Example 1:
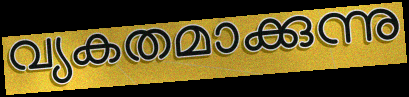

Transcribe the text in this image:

വ്യകതമാക്കുന്നു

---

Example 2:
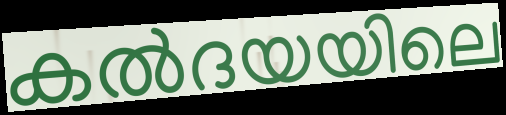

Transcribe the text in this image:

കൽദയയിലെ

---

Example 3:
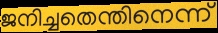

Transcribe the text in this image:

ജനിച്ചതെന്തിനെന്ന്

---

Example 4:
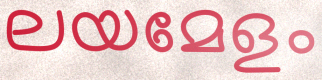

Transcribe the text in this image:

ലയമേളം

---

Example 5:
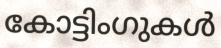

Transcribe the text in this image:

കോട്ടിംഗുകൾ